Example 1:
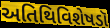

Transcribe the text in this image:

અતિથિવિશેષડૉ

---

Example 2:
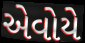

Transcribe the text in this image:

એવોયે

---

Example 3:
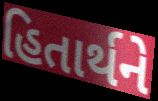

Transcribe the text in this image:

હિતાર્થને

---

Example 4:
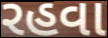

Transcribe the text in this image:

રહવા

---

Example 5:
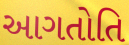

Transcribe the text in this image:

આગતોતિ